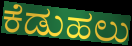
ಕೆಡುಹಲು